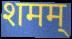
शमम्